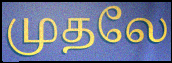
முதலே